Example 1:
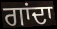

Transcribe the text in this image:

ਗਾਂਦਾ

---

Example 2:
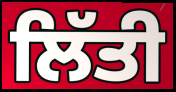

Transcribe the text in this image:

ਲਿੱਤੀ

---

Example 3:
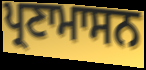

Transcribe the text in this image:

ਪ੍ਰਣਾਮਾਸਨ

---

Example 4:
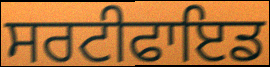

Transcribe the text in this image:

ਸਰਟੀਫਾਇਡ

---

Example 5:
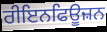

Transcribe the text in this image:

ਰੀਇਨਫਿਊਜ਼ਨ